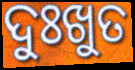
ଦୁଃଖୁତ